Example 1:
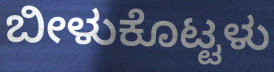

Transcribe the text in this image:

ಬೀಳುಕೊಟ್ಟಳು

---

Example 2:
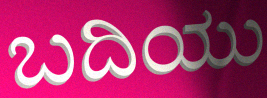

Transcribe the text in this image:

ಬದಿಯು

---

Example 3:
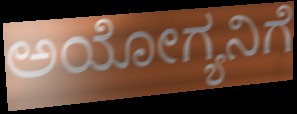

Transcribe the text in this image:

ಅಯೋಗ್ಯನಿಗೆ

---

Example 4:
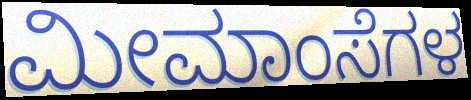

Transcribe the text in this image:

ಮೀಮಾಂಸೆಗಳ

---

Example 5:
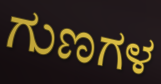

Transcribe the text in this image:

ಗುಣಗಳ